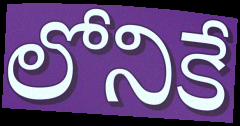
లోనికే